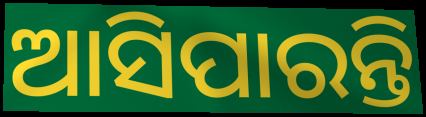
ଆସିପାରନ୍ତି